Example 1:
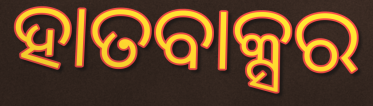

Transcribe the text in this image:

ହାତବାକ୍ସର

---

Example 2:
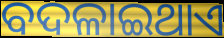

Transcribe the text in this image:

ବଦଳାଇଥାଏ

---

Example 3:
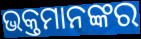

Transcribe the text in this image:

ଭକ୍ତମାନଙ୍କର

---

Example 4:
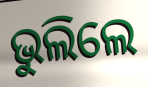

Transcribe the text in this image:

ଭୁଲିଲେ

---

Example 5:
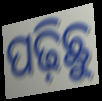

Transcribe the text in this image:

ପଢ଼ିଛୁ